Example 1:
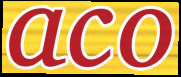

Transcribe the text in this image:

aco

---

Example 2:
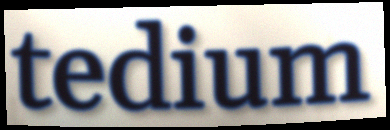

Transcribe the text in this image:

tedium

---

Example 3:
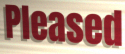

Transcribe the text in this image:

Pleased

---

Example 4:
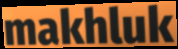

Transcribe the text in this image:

makhluk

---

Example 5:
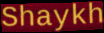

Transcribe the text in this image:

Shaykh